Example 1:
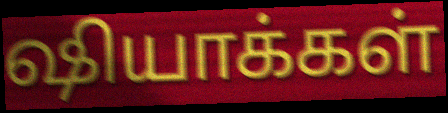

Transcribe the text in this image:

ஷியாக்கள்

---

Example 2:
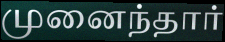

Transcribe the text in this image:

முனைந்தார்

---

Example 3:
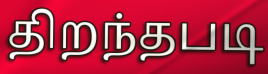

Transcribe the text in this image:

திறந்தபடி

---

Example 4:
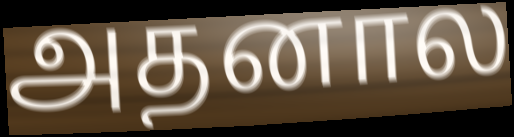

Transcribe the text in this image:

அதனால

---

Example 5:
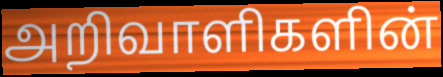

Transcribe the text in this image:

அறிவாளிகளின்